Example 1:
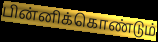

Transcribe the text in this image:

பின்னிக்கொண்டும்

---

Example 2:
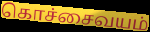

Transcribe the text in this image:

கொச்சைவயம்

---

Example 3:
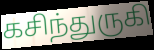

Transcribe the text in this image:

கசிந்துருகி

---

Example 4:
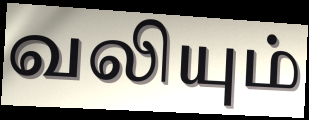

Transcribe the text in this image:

வலியும்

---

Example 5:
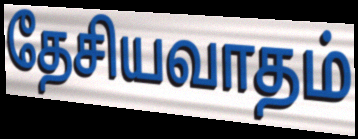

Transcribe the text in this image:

தேசியவாதம்